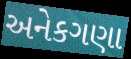
અનેકગણા